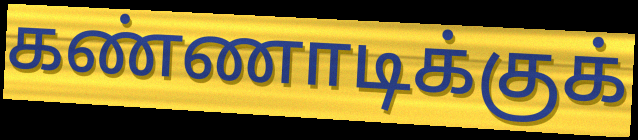
கண்ணாடிக்குக்